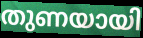
തുണയായി